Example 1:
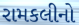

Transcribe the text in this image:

રામકલીનો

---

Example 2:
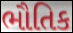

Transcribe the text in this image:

ભૌતિક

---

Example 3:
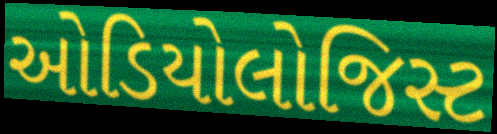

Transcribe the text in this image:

ઓડિયોલોજિસ્ટ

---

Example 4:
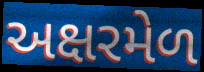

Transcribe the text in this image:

અક્ષરમેળ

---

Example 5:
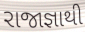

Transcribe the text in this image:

રાજાજ્ઞાથી